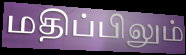
மதிப்பிலும்